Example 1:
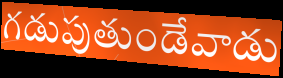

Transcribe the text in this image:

గడుపుతుండేవాడు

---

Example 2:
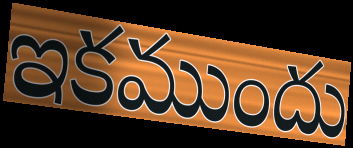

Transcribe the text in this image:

ఇకముందు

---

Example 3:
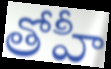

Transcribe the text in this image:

తోహీ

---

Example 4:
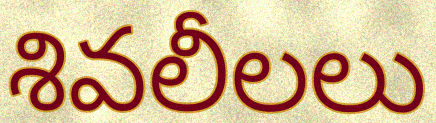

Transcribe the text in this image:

శివలీలలు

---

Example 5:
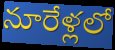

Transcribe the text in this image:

నూరేళ్లలో